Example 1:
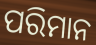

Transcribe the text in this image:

ପରିମାନ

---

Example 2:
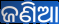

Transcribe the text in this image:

ଜଣିଆ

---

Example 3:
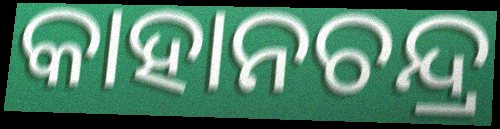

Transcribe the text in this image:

କାହାନଚନ୍ଦ୍ର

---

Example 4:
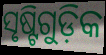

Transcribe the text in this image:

ସୃଷ୍ଟିଗୁଡ଼ିକ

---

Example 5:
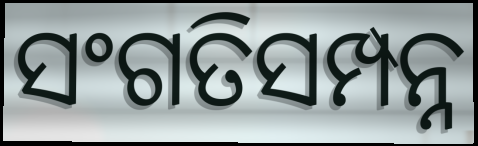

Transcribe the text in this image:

ସଂଗତିସମ୍ପନ୍ନ